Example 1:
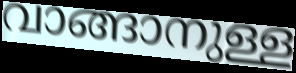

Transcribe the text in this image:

വാങ്ങാനുള്ള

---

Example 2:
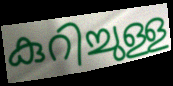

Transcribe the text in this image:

കുറിച്ചുള്ള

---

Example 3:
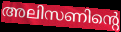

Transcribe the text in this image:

അലിസണിന്റെ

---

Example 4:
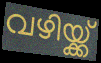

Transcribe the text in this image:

വഴിയ്ക്ക്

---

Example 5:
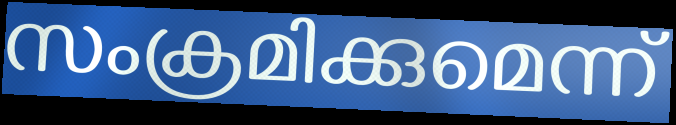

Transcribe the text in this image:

സംക്രമിക്കുമെന്ന്